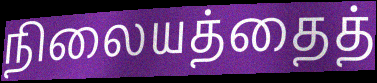
நிலையத்தைத்